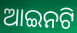
ଆଇନଟି